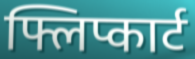
फ्लिप्कार्ट